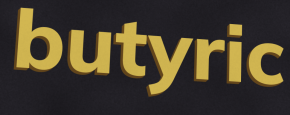
butyric